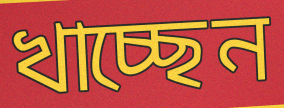
খাচ্ছেন